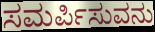
ಸಮರ್ಪಿಸುವನು